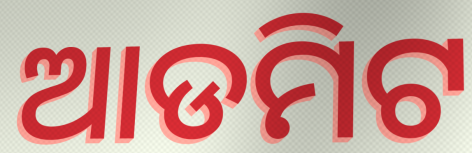
ଆଡମିଟ